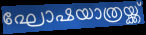
ഘോഷയാത്രയ്ക്ക്